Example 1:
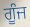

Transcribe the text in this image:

ਗੂੰਜ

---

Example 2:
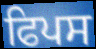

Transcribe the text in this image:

ਫਿਪਸ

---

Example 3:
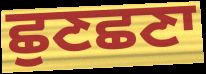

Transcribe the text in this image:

ਛੁਣਛਣਾ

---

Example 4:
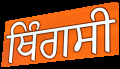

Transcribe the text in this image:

ਥਿੰਗਸੀ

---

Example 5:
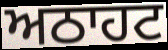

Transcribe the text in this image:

ਅਠਾਹਟ